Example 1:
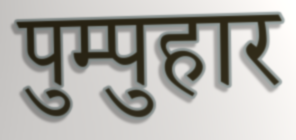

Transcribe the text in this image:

पुम्पुहार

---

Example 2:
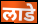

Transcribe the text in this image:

लाडे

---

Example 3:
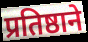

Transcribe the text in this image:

प्रतिष्ठाने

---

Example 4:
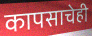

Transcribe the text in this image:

कापसाचेही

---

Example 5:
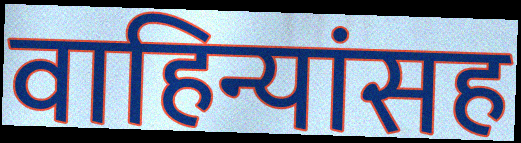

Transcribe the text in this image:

वाहिन्यांसह